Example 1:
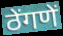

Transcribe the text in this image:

ठेंगणें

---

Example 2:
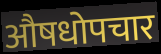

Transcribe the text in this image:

औषधोपचार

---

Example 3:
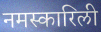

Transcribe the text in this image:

नमस्कारिली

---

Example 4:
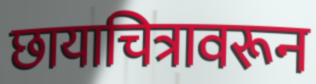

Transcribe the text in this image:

छायाचित्रावरून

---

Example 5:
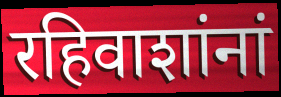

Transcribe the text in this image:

रहिवाशांनां